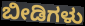
ಬೀಡಿಗಳು